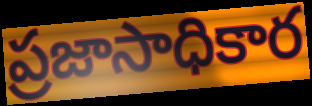
ప్రజాసాధికార